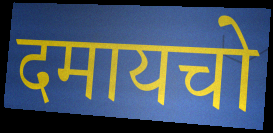
दमायचो